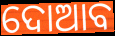
ଦୋଆବ